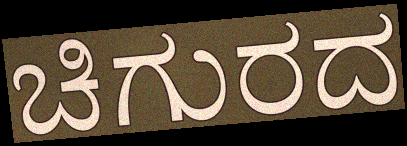
ಚಿಗುರದ